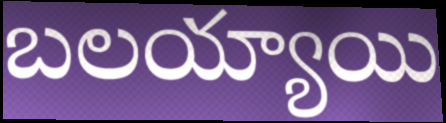
బలయ్యాయి